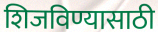
शिजविण्यासाठी